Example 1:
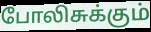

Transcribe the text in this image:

போலிசுக்கும்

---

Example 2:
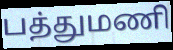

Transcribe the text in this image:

பத்துமணி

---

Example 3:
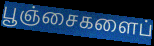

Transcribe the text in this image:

பூஞ்சைகளைப்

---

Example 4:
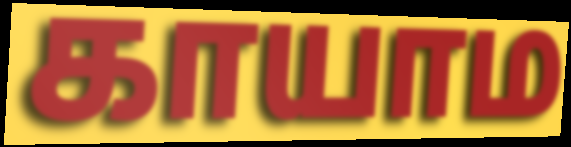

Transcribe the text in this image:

காயாம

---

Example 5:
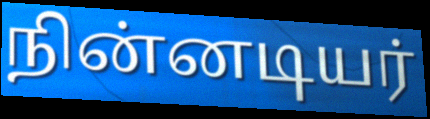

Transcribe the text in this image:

நின்னடியர்